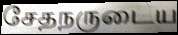
சேதநருடைய